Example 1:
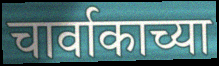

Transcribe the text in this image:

चार्वाकाच्या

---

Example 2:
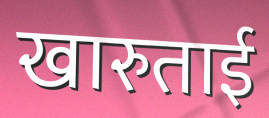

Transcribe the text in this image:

खारुताई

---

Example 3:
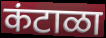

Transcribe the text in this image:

कंटाळा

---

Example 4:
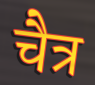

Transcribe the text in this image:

चैत्र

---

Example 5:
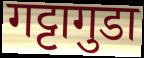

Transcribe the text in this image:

गट्टागुडा